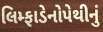
લિમ્ફાડેનોપેથીનું